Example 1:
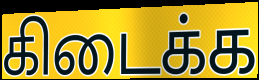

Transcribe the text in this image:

கிடைக்க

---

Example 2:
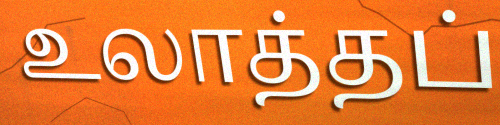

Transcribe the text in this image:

உலாத்தப்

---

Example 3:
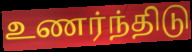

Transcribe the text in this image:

உணர்ந்திடு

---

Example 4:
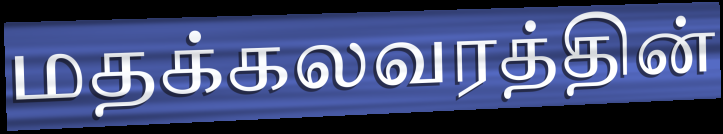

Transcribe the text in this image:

மதக்கலவரத்தின்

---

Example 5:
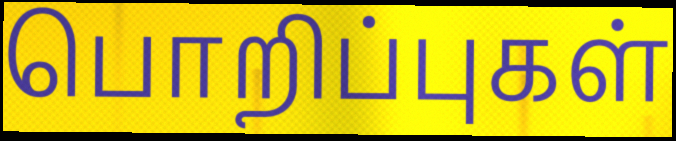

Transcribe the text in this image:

பொறிப்புகள்